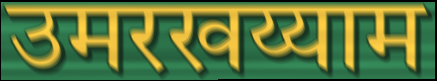
उमरखय्याम